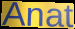
Anat